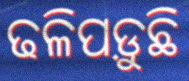
ଢଳିପଡ଼ୁଛି